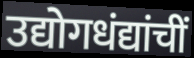
उद्योगधंद्यांचीं